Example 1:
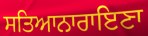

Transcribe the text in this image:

ਸਤਿਆਨਾਰਾਇਣਾ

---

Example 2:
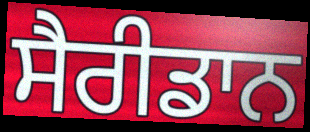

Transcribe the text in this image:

ਸੈਰੀਡਾਨ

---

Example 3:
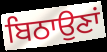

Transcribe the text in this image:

ਬਿਠਾਉਣਾਂ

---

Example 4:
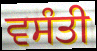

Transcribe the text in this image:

ਵਸੰਤੀ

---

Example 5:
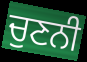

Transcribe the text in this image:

ਚੁਣਨੀ